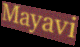
Mayavi